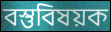
বস্তুবিষয়ক